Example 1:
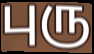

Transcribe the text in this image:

புரு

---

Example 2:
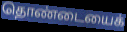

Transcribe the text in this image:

தொண்டையைக்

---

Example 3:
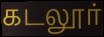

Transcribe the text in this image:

கடலூர்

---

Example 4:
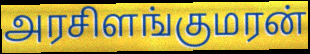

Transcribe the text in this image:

அரசிளங்குமரன்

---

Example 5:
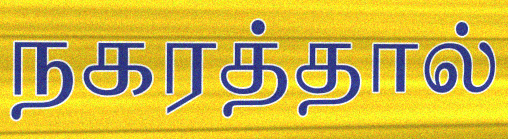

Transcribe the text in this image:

நகரத்தால்